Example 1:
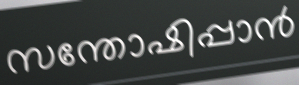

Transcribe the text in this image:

സന്തോഷിപ്പാൻ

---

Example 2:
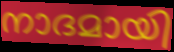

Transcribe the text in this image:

നാദമായി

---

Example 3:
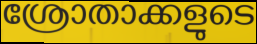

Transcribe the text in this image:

ശ്രോതാക്കളുടെ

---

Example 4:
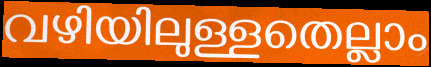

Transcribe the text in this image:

വഴിയിലുള്ളതെല്ലാം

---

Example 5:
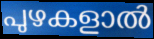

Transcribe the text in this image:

പുഴകളാൽ